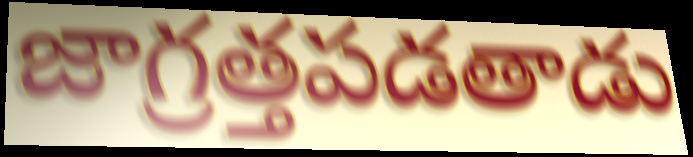
జాగ్రత్తపడతాడు